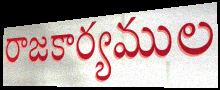
రాజకార్యముల